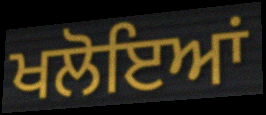
ਖਲੋਇਆਂ